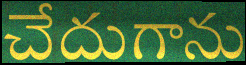
చేదుగాను